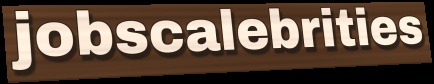
jobscalebrities